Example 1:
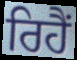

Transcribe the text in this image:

ਰਿਹੈੰ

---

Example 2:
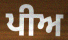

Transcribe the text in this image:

ਪੀਅ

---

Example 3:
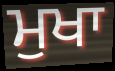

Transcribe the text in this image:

ਮੁਖਾ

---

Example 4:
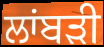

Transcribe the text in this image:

ਲਾਂਬੜੀ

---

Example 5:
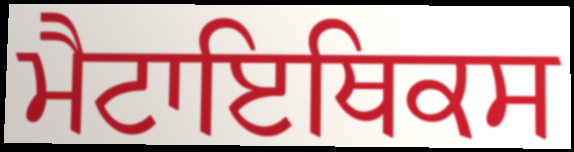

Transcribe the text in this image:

ਮੈਟਾਇਥਿਕਸ